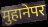
मुहानेपर